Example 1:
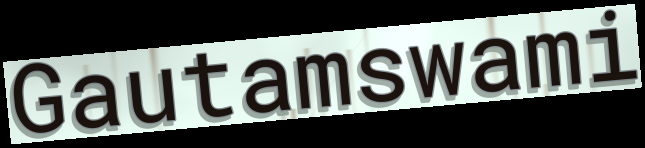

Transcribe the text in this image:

Gautamswami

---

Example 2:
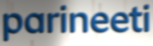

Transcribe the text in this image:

parineeti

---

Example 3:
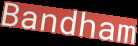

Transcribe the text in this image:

Bandham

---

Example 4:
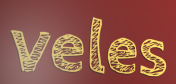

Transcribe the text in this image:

veles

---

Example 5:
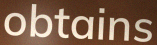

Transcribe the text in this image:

obtains